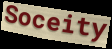
Soceity